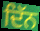
ਦਿੱਨ